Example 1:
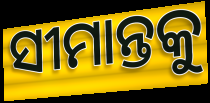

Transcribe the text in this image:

ସୀମାନ୍ତକୁ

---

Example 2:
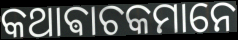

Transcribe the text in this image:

କଥାଵାଚକମାନେ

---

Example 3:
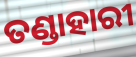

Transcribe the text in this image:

ତଣ୍ଡାହାରୀ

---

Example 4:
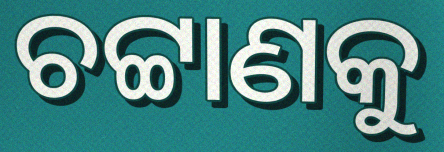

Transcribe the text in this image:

ଚଟ୍ଟାଣକୁ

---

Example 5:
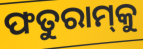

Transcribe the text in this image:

ଫତୁରାମ୍‌କୁ